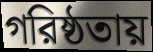
গরিষ্ঠতায়